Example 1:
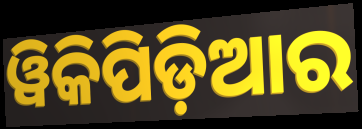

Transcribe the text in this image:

ୱିକିପିଡ଼ିଆର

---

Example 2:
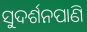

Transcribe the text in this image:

ସୁଦର୍ଶନପାଣି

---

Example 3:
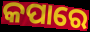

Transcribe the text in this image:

କପାରେ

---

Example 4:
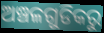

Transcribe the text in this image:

ଅଞ୍ଚଳଗୁଡିକରୁ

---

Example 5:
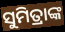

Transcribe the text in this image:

ସୁମିତ୍ରାଙ୍କ